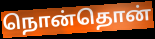
நொன்தொன்